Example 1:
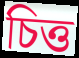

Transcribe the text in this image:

চিত্ত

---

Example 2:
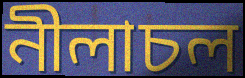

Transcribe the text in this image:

নীলাচল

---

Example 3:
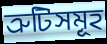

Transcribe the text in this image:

ত্ৰুটিসমূহ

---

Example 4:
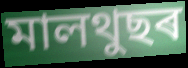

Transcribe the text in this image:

মালথুছৰ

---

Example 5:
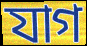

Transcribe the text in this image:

যাগ